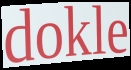
dokle